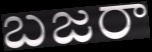
బజరా